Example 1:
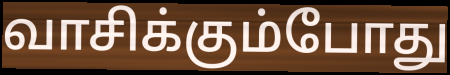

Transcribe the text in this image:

வாசிக்கும்போது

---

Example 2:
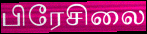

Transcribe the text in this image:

பிரேசிலை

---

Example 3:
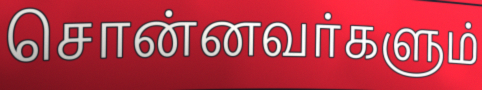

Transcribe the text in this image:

சொன்னவர்களும்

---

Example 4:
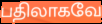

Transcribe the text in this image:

பதிலாகவே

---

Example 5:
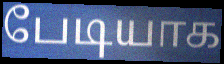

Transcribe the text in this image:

பேடியாக